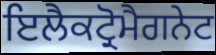
ਇਲੈਕਟ੍ਰੋਮੈਗਨੇਟ